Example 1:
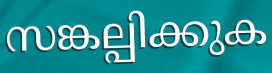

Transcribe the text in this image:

സങ്കല്പിക്കുക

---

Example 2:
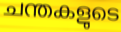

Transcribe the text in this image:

ചന്തകളുടെ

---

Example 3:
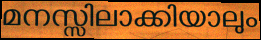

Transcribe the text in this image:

മനസ്സിലാക്കിയാലും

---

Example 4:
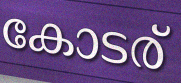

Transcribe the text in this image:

കോടര്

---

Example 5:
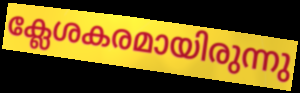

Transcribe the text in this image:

ക്ലേശകരമായിരുന്നു